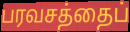
பரவசத்தைப்